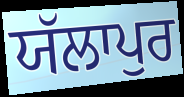
ਯੱਲਾਪੁਰ